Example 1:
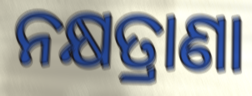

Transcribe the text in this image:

ନକ୍ଷତ୍ରାଣା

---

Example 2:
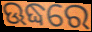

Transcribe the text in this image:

ଊଦ୍ଧରେ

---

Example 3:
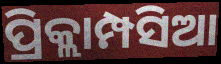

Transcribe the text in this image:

ପ୍ରିକ୍ଲାମ୍ପସିଆ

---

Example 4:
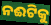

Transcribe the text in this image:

ନଈଟିକୁ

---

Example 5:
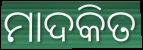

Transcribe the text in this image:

ମାଦକିତ